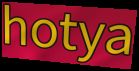
hotya